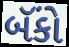
બૅંકો